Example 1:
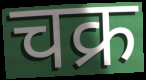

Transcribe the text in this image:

चक्र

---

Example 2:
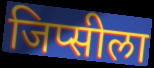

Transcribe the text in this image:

जिप्सीला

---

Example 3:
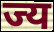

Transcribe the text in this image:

ज्य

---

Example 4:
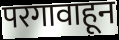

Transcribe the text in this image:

परगावाहून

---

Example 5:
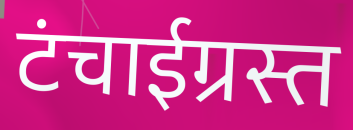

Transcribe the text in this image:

टंचाईग्रस्त